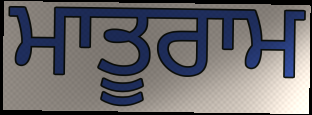
ਮਾਤੂਰਾਮ